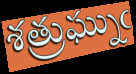
శత్రుఘ్నుఁ